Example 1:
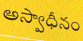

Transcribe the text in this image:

అస్వాధీనం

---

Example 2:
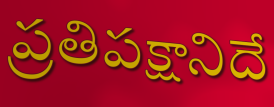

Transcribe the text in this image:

ప్రతిపక్షానిదే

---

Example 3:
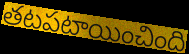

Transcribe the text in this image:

తటపటాయించింది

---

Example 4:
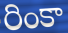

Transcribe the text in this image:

రింకా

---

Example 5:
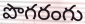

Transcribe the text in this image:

పొగరంగు